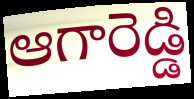
ఆగారెడ్డి